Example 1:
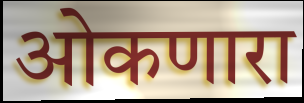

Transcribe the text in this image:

ओकणारा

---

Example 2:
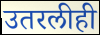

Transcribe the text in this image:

उतरलीही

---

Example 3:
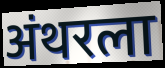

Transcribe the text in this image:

अंथरला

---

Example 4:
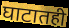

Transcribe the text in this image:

घाटातही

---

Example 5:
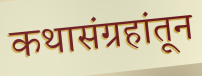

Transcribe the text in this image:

कथासंग्रहांतून